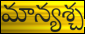
మాన్యశ్చ